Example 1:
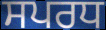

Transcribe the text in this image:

ਸਪਰਧ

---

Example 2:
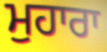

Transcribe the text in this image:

ਮੁਹਾਰਾ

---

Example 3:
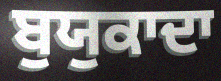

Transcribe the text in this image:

ਬੁਯੁਕਾਦਾ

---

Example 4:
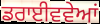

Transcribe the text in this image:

ਡਰਾਈਵਵੇਆਂ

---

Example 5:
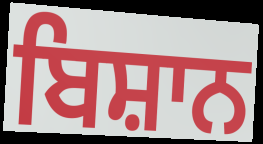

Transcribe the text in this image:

ਬਿਸ਼ਾਨ